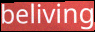
beliving